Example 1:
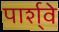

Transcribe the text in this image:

पार्श्वे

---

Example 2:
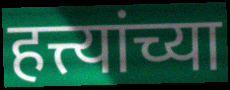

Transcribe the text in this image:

हत्त्यांच्या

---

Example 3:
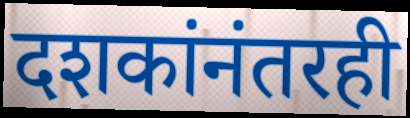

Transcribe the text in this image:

दशकांनंतरही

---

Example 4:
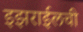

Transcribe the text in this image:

इझराईलची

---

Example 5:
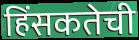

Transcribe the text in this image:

हिंसकतेची